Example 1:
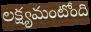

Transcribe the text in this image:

లక్ష్యమంటోంది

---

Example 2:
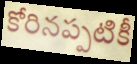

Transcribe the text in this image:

కోరినప్పటికీ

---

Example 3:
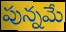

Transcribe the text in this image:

పున్నమే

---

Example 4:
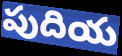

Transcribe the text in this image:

పుదియ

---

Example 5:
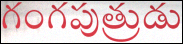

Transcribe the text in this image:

గంగపుత్రుడు